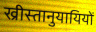
ख्रीस्तानुयायियों